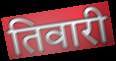
तिवारी